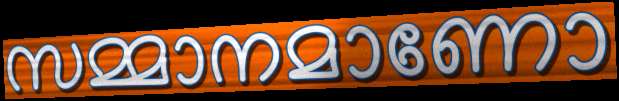
സമ്മാനമാണോ